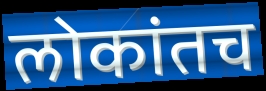
लोकांतच